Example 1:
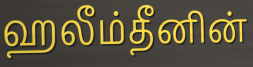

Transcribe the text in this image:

ஹலீம்தீனின்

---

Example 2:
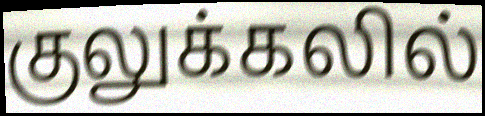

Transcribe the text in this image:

குலுக்கலில்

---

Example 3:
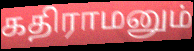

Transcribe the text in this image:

கதிராமனும்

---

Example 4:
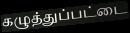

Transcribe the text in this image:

கழுத்துப்பட்டை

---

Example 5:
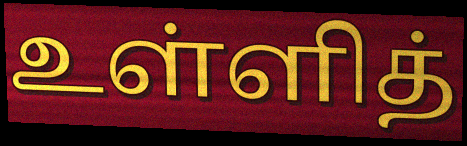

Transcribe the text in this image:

உள்ளித்